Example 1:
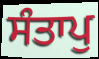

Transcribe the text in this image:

ਸੰਤਾਪੁ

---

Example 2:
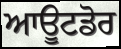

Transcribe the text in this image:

ਆਊਟਡੋਰ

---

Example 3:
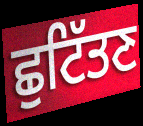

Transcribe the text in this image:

ਛੁਟਿੱਤਣ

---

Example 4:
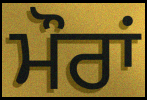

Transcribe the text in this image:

ਮੌਰਾਂ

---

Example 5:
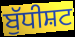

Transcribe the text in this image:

ਬੁੱਧੀਸ਼ਟ